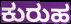
ಕುರುಹ